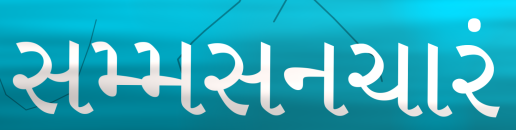
સમ્મસનચારં